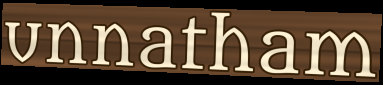
unnatham